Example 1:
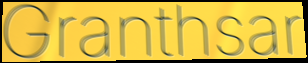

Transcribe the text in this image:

Granthsar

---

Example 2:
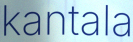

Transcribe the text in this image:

kantala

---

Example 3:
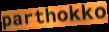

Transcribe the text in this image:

parthokko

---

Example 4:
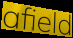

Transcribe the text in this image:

afield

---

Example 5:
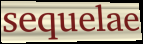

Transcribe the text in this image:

sequelae